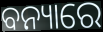
ବନ୍ୟାରେ